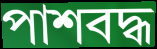
পাশবদ্ধ